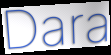
Dara